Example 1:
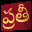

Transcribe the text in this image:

ప్రతీ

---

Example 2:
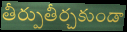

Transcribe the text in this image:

తీర్పుతీర్చకుండా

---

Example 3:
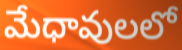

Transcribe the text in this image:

మేధావులలో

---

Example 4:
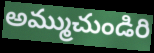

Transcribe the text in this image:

అమ్ముచుండిరి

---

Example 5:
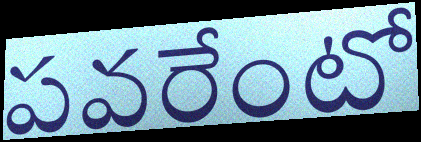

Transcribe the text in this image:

పవరేంటో